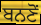
ਬਨਣੋਂ